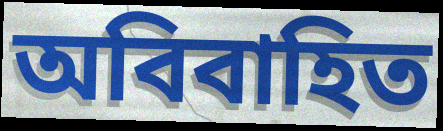
অবিবাহিত